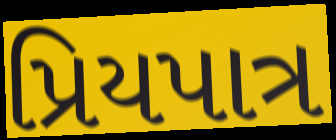
પ્રિયપાત્ર